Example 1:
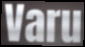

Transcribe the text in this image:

Varu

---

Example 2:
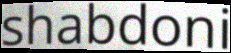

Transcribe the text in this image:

shabdoni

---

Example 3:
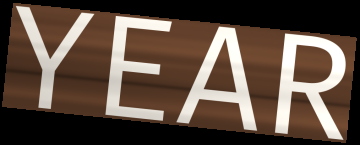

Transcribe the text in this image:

YEAR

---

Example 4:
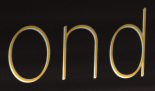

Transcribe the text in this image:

ond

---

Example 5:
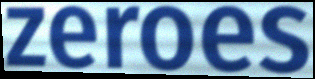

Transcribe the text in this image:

zeroes